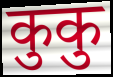
कुकु